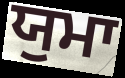
ਯੁਮਾ